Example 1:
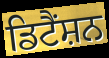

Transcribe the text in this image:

ਡਿਟੈਂਸ਼ਨ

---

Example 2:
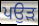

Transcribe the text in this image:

ਪਉੜ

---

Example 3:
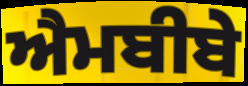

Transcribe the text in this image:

ਐਮਬੀਬੇ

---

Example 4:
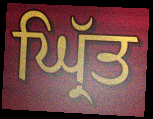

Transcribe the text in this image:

ਘ੍ਰਿੱਤ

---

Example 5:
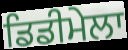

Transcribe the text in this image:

ਡਿਡੀਮੇਲਾ